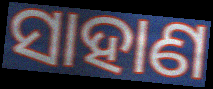
ସାହାଣ